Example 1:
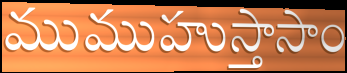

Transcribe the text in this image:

ముముహుస్తాసాం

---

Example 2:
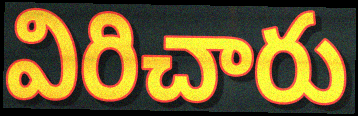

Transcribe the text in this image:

విరిచారు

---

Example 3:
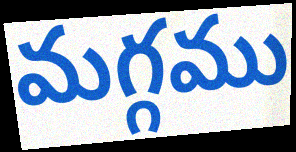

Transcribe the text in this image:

మగ్గము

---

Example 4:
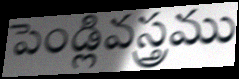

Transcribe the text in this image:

పెండ్లివస్త్రము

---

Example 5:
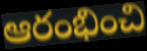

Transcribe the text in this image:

ఆరంభించి